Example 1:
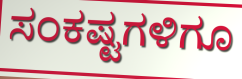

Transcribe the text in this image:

ಸಂಕಷ್ಟಗಳಿಗೂ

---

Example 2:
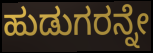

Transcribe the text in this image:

ಹುಡುಗರನ್ನೇ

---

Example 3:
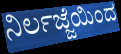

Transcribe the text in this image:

ನಿರ್ಲಜ್ಜೆಯಿಂದ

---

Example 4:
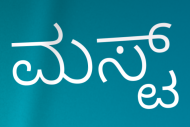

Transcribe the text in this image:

ಮಸ್ಟ್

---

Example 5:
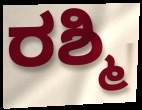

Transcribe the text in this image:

ರಶ್ಮಿ